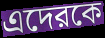
এদেরকে